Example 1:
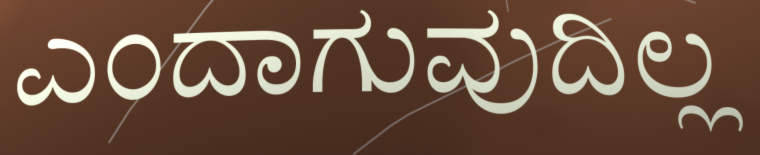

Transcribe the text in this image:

ಎಂದಾಗುವುದಿಲ್ಲ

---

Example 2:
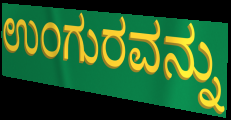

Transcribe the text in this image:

ಉಂಗುರವನ್ನು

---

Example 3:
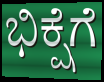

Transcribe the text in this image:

ಭಿಕ್ಷೆಗೆ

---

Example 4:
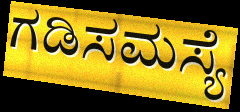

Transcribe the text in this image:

ಗಡಿಸಮಸ್ಯೆ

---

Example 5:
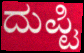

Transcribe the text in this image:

ದುಪ್ಟಿ